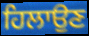
ਹਿਲਾਉਣ